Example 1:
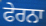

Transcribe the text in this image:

ਫੇਰਨਾ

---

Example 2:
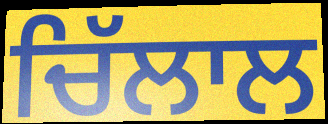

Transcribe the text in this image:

ਚਿੱਲਾਲ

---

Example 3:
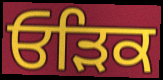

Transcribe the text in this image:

ਓੜਿਕ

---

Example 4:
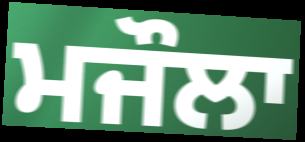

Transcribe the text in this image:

ਮਜੌਲਾ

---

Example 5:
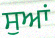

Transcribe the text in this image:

ਸੁਆਂ